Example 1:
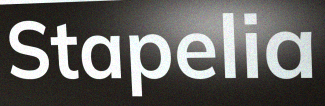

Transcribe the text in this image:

Stapelia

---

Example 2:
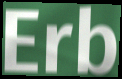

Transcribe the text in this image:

Erb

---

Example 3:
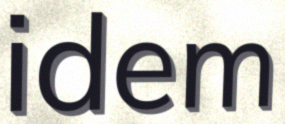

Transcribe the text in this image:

idem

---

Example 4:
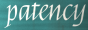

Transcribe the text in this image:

patency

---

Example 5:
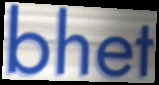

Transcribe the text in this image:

bhet